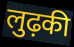
लुढ़की